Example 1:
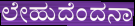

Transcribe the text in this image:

ಲೇಹುದೆಂದನಾ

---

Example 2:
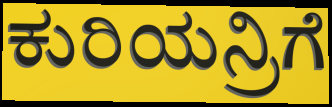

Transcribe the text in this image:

ಕುರಿಯನ್ರಿಗೆ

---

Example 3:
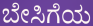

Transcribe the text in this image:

ಬೇಸಿಗೆಯ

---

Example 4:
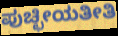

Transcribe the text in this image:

ಪುಚ್ಛೀಯತೀತಿ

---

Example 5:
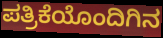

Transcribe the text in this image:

ಪತ್ರಿಕೆಯೊಂದಿಗಿನ